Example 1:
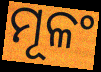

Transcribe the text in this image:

ମୂଳଂ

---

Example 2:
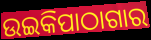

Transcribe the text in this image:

ଉଇକିପାଠାଗାର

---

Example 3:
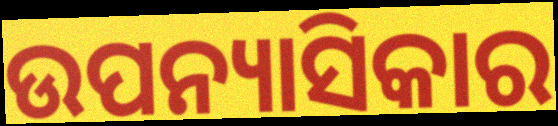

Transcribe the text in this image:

ଉପନ୍ୟାସିକାର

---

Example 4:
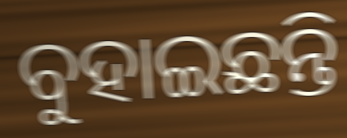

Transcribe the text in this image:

ବୁହାଇଛନ୍ତି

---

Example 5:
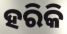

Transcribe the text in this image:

ହରିକି